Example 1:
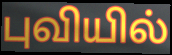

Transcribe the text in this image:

புவியில்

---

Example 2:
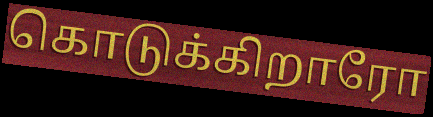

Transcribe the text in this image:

கொடுக்கிறாரோ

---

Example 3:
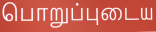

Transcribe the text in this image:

பொறுப்புடைய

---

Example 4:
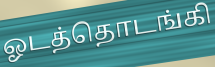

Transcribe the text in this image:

ஓடத்தொடங்கி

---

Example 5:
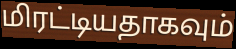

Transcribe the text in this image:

மிரட்டியதாகவும்